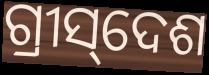
ଗ୍ରୀସ୍‌ଦେଶ